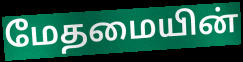
மேதமையின்